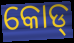
କୋଡ୍